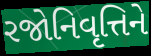
રજોનિવૃત્તિને